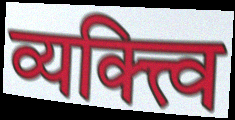
व्यक्त्त्वि